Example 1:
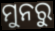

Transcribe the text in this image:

ମୁନରୁ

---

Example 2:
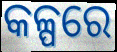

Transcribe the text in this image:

କଳ୍ପରେ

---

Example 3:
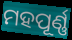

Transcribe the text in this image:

ମହପୂର୍ଣ୍ଣ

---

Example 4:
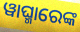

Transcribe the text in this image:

ୱାଘ୍ମାରେଙ୍କ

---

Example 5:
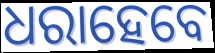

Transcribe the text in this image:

ଧରାହେବେ